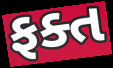
ફક્ત